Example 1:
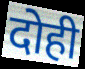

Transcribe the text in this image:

दोही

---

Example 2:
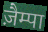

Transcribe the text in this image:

ज़ैम्पा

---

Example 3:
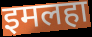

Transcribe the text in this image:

इमलहा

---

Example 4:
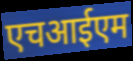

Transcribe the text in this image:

एचआईएम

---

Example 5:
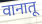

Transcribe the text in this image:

वानातू